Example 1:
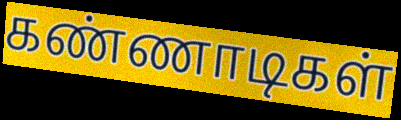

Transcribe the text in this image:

கண்ணாடிகள்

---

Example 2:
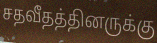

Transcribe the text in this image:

சதவீதத்தினருக்கு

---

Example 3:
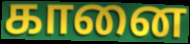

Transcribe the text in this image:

கானை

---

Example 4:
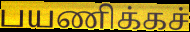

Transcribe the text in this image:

பயணிக்கச்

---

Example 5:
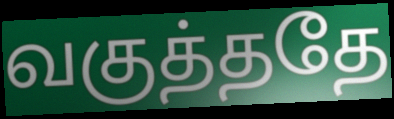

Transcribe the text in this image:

வகுத்ததே